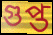
গুপ্ত